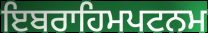
ਇਬਰਾਹਿਮਪਟਨਮ